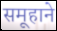
समूहाने